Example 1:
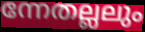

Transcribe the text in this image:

ന്നേതല്ലലും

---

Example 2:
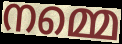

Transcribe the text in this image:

നമ്മെ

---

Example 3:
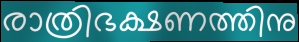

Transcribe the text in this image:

രാത്രിഭക്ഷണത്തിനു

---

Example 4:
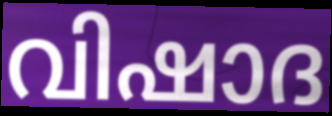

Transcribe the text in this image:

വിഷാദ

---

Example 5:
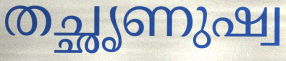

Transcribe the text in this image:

തച്ഛൃണുഷ്വ